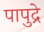
पापुद्रे